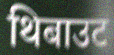
थिबाउट